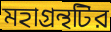
মহাগ্রন্থটির